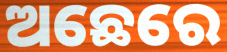
ଅଛେରେ